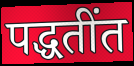
पद्धतींत